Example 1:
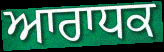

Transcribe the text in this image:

ਆਰਾਧਕ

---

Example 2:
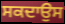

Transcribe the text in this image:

ਸਕਦਾਉਸ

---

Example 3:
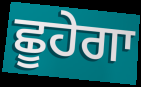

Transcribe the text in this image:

ਛੂਹੇਗਾ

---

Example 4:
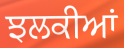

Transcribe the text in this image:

ਝਲਕੀਆਂ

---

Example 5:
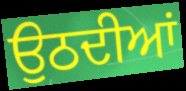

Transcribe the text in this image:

ਉਠਦੀਆਂ